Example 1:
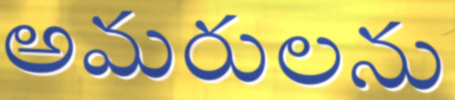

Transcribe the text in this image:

అమరులను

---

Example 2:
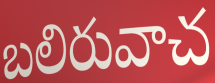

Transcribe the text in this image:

బలిరువాచ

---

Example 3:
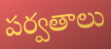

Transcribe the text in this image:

పర్వతాలు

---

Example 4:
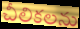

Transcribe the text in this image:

చీలికలను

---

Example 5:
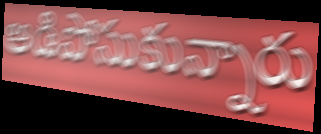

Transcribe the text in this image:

ఆడిపోసుకున్నారు